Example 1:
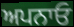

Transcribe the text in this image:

ਅਪਨਾਓ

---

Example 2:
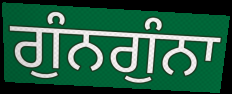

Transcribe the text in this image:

ਗੁੰਨਗੁੰਨਾ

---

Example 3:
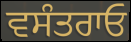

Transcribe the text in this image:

ਵਸੰਤਰਾਓ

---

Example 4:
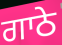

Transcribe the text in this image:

ਗਾਠੇ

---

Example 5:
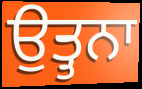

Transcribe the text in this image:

ਉਤ੍ਤਨਾ